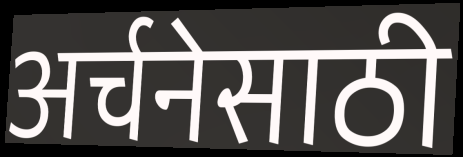
अर्चनेसाठी